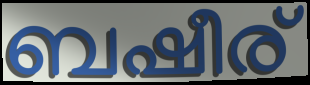
ബഷീര്